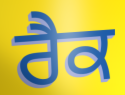
ਰੈਕ